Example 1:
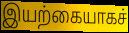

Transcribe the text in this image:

இயற்கையாகச்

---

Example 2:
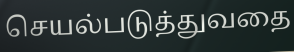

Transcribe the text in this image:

செயல்படுத்துவதை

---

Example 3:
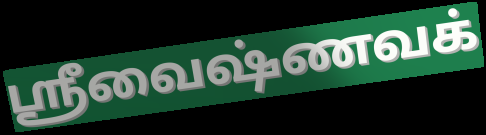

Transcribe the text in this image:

ஸ்ரீவைஷ்ணவக்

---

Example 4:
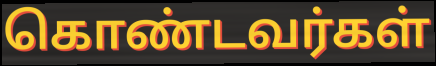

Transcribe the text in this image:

கொண்டவர்கள்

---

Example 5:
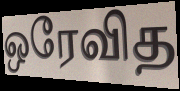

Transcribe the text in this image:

ஒரேவித